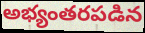
అభ్యంతరపడిన